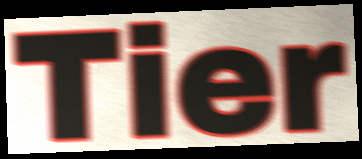
Tier